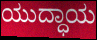
ಯುದ್ಧಾಯ